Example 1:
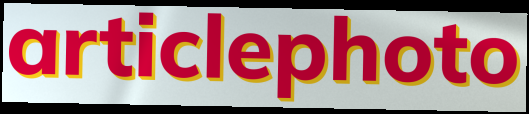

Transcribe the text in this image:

articlephoto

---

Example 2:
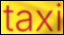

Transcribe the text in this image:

taxi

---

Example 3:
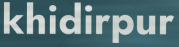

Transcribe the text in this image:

khidirpur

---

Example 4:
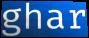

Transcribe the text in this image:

ghar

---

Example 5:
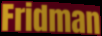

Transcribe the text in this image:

Fridman